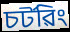
চৰ্টৱিং